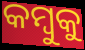
କମ୍ବୁକୁ